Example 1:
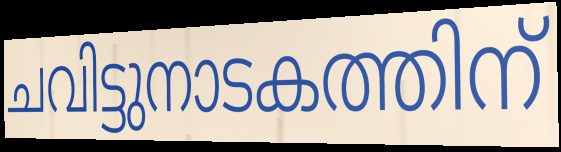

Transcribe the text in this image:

ചവിട്ടുനാടകത്തിന്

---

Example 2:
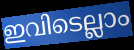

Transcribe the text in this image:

ഇവിടെല്ലാം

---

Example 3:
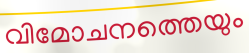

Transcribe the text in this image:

വിമോചനത്തെയും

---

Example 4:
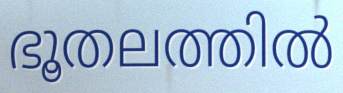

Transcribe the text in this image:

ഭൂതലത്തിൽ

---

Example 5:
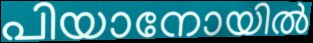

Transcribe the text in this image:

പിയാനോയിൽ